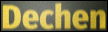
Dechen